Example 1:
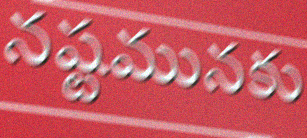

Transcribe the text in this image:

నష్టమునకు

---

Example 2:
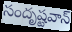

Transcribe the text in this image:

సందృష్టవాన్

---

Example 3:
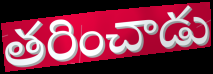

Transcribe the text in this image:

తరించాడు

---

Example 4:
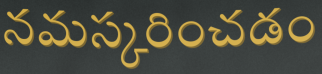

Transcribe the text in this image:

నమస్కరించడం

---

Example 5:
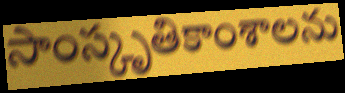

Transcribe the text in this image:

సాంస్కృతికాంశాలను